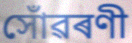
সোঁৱৰণী